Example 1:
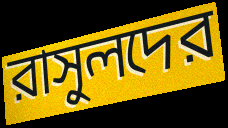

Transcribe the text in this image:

রাসুলদের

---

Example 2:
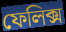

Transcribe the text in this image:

ফেলিক্স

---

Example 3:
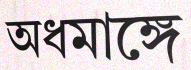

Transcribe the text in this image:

অধমাঙ্গে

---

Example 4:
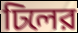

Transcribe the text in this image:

ঢিলের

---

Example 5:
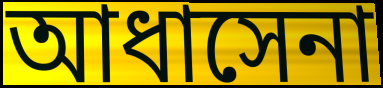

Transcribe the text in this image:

আধাসেনা